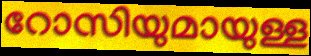
റോസിയുമായുള്ള